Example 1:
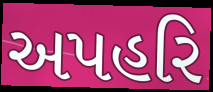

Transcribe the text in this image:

અપહરિ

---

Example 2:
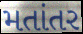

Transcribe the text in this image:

મતાંતર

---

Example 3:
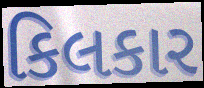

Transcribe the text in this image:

કિલકાર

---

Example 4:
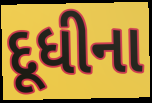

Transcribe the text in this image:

દૂધીના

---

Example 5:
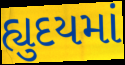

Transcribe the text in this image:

હ્યુદયમાં